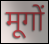
मूगों